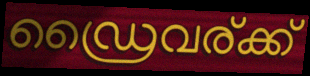
ഡ്രൈവര്ക്ക്